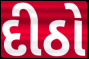
દીઠો